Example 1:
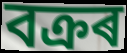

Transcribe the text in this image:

বক্ৰৰ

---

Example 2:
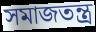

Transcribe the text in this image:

সমাজতন্ত্ৰ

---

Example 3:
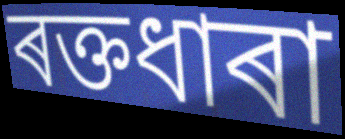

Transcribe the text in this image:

ৰক্তধাৰা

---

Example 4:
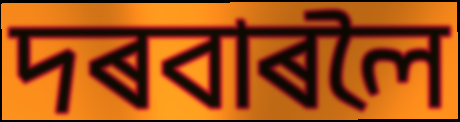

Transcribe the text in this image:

দৰবাৰলৈ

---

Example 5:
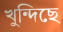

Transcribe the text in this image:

খুন্দিছে